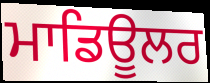
ਮਾਡਿਊਲਰ